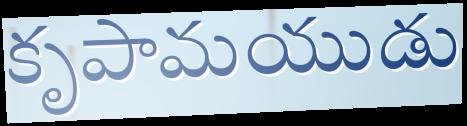
కృపామయుడు